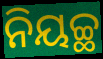
ନିୟଚ୍ଛ